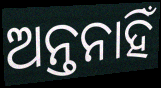
ଅନ୍ତନାହିଁ